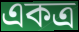
একত্র